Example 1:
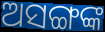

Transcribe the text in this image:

ଅସଙ୍ଗଙ୍କ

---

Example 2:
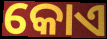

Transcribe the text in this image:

କୋଏ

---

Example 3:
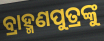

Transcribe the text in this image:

ବ୍ରାହ୍ମଣପୁତ୍ରଙ୍କୁ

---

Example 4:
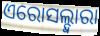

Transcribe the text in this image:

ଏରୋସଲ୍ଦ୍ୱାରା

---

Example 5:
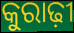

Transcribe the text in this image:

କୁରାଢ଼ୀ